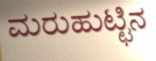
ಮರುಹುಟ್ಟಿನ